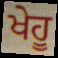
ਖੇਹੂ